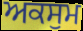
ਅਕਸੁਮ